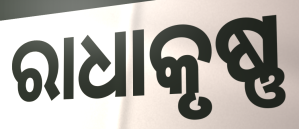
ରାଧାକୃଷ୍ଣ